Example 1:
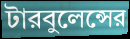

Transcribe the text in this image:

টারবুলেন্সের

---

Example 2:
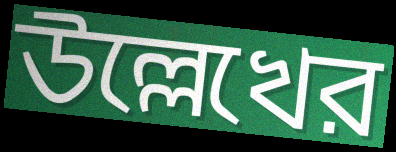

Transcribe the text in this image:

উল্লেখের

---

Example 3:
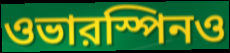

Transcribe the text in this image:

ওভারস্পিনও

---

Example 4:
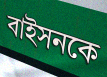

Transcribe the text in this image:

বাইসনকে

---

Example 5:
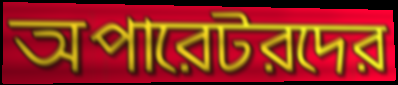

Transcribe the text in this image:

অপারেটরদের